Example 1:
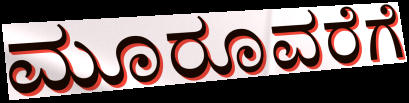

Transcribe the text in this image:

ಮೂರೂವರೆಗೆ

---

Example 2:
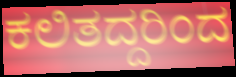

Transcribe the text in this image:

ಕಲಿತದ್ದರಿಂದ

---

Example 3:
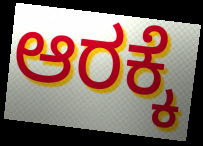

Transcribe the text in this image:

ಆರಕ್ಕೆ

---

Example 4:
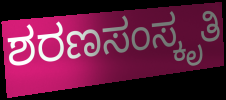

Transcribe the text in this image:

ಶರಣಸಂಸ್ಕೃತಿ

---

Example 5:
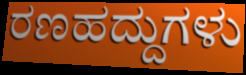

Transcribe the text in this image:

ರಣಹದ್ದುಗಳು